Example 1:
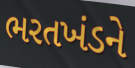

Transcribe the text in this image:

ભરતખંડને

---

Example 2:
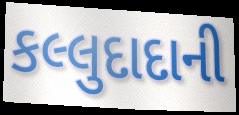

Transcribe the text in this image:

કલ્લુદાદાની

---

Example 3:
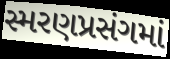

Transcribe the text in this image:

સ્મરણપ્રસંગમાં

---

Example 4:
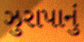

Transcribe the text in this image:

ઝુરાપાનું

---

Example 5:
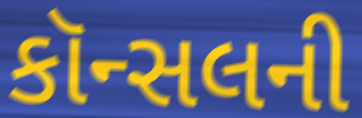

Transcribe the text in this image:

કૉન્સલની